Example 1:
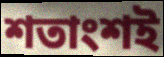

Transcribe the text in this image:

শতাংশই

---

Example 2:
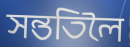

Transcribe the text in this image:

সন্ততিলৈ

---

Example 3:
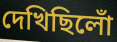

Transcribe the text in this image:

দেখিছিলোঁ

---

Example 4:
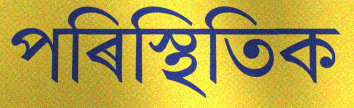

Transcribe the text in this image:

পৰিস্থিতিক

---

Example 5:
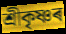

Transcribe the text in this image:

শ্ৰীকৃষ্ণৰ